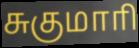
சுகுமாரி